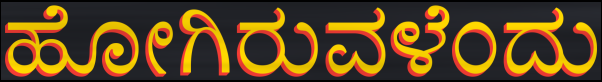
ಹೋಗಿರುವಳೆಂದು